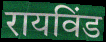
रायविंड